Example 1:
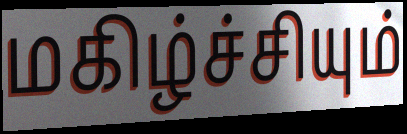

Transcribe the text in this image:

மகிழ்ச்சியும்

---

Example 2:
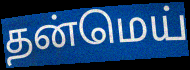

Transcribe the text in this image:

தன்மெய்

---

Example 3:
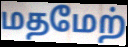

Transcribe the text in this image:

மதமேற்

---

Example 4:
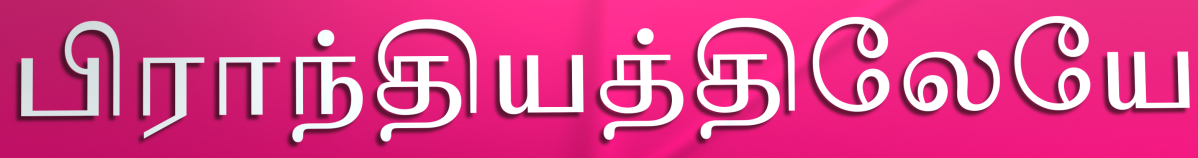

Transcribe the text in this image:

பிராந்தியத்திலேயே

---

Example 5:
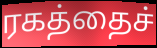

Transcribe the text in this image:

ரகத்தைச்